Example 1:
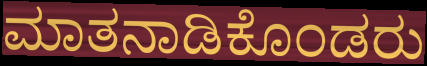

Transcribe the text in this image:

ಮಾತನಾಡಿಕೊಂಡರು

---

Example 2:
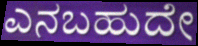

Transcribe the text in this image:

ಎನಬಹುದೇ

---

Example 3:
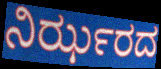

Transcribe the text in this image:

ನಿರ್ಝರದ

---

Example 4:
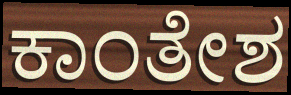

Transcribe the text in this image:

ಕಾಂತೇಶ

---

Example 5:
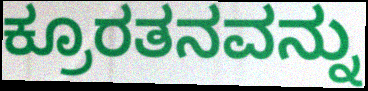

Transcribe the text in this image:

ಕ್ರೂರತನವನ್ನು